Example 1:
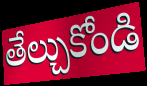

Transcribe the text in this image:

తేల్చుకోండి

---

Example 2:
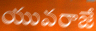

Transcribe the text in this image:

యువరాజే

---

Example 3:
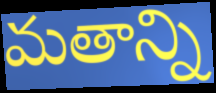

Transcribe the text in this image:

మతాన్ని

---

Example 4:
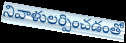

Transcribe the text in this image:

నివాళులర్పించడంతో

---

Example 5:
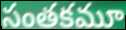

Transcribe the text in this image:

సంతకమూ